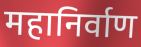
महानिर्वाण